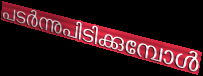
പടർന്നുപിടിക്കുമ്പോൾ